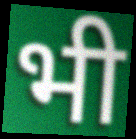
भी